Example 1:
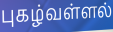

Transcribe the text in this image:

புகழ்வள்ளல்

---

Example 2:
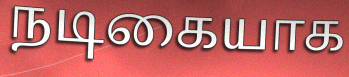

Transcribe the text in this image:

நடிகையாக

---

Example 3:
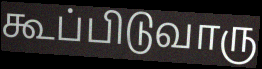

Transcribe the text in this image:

கூப்பிடுவாரு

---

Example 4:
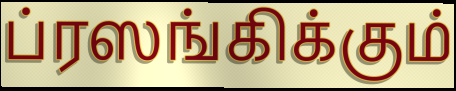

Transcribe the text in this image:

ப்ரஸங்கிக்கும்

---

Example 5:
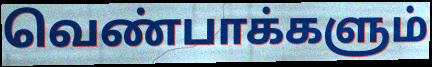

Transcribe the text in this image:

வெண்பாக்களும்